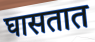
घासतात